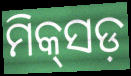
ମିକ୍‌ସଡ଼